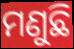
ମଣୁଛି